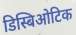
डिस्बिओटिक